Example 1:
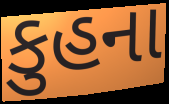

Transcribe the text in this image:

કુહના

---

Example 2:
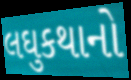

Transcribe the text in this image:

લઘુકથાનો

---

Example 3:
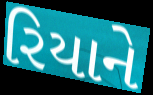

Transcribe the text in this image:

રિયાને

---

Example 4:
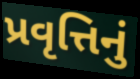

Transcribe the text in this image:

પ્રવૃત્તિનું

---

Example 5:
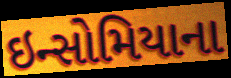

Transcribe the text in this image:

ઇન્સોમિયાના